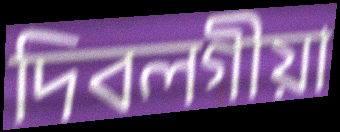
দিবলগীয়া